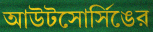
আউটসোর্সিঙের